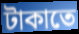
টাকাতে